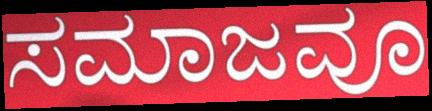
ಸಮಾಜವೂ